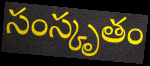
సంస్కృతం